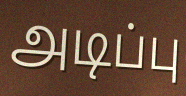
அடிப்பு